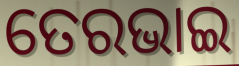
ତେରଭାଇ